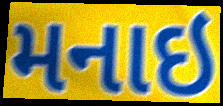
મનાઇ